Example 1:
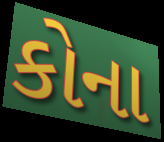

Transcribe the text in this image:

કોના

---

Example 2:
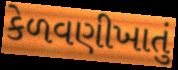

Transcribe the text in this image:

કેળવણીખાતું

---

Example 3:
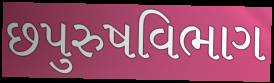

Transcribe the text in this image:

છપુરુષવિભાગ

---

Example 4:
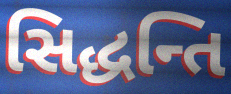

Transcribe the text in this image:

સિદ્ધન્તિ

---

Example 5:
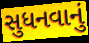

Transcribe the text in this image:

સુધનવાનું